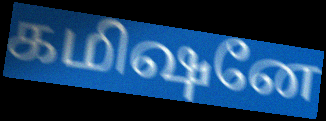
கமிஷனே